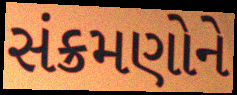
સંક્રમણોને